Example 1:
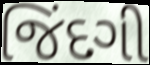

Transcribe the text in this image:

જિંદગી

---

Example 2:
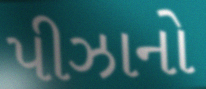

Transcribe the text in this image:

પીઝાનો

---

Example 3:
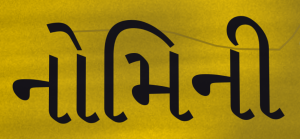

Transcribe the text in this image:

નોમિની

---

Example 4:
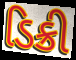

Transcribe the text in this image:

ડિક્રી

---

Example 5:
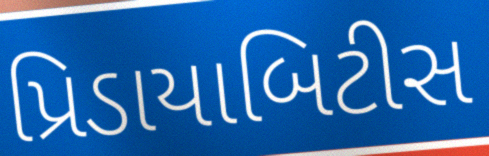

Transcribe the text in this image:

પ્રિડાયાબિટીસ